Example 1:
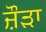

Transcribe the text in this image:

ਜ਼ੌੜਾ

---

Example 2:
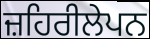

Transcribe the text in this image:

ਜ਼ਹਿਰੀਲੇਪਨ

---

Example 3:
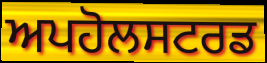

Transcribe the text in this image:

ਅਪਹੋਲਸਟਰਡ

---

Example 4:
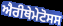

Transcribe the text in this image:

ਐਰੀਥੇਮੇਟੋਸਸ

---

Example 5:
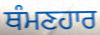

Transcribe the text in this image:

ਥੰਮਣਹਾਰ